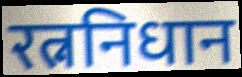
रत्ननिधान